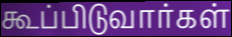
கூப்பிடுவார்கள்